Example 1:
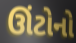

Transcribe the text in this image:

ઊંટોનો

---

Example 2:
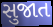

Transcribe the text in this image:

સુજાત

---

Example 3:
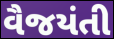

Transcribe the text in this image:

વૈજયંતી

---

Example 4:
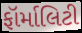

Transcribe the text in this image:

ફૉર્માલિટી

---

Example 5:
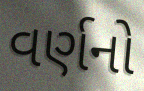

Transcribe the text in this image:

વર્ણનો